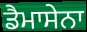
ਡੈਮਾਸੇਨਾ